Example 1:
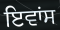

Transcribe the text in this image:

ਇਵਾਂਸ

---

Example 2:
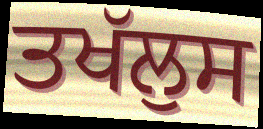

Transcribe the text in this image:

ਤਖੱਲੁਸ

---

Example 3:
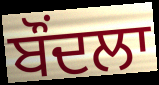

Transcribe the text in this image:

ਬੌਂਦਲਾ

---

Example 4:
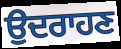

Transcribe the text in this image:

ਉਦਰਾਹਣ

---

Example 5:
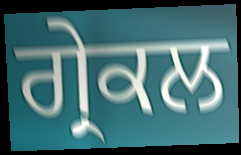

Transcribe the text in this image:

ਗ੍ਰੇਕਲ